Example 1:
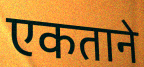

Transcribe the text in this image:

एकताने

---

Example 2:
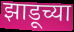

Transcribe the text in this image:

झाडूच्या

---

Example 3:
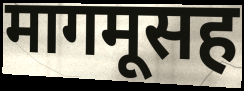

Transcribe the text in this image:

मागमूसह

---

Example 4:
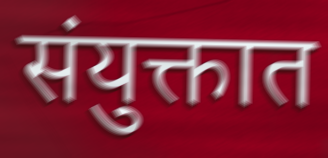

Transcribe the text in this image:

संयुक्तात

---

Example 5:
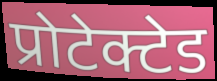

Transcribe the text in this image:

प्रोटेक्टेड